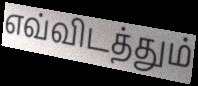
எவ்விடத்தும்